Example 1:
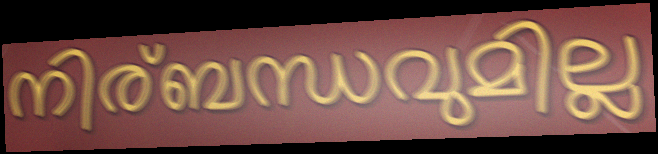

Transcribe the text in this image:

നിര്ബന്ധവുമില്ല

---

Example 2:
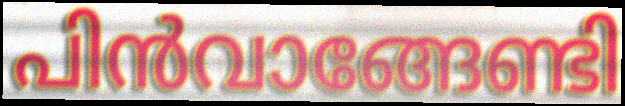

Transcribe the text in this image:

പിൻവാങ്ങേണ്ടി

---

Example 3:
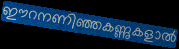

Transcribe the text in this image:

ഈറനണിഞ്ഞകണ്ണുകളാൽ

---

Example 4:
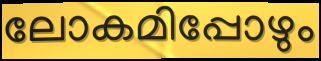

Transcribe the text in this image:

ലോകമിപ്പോഴും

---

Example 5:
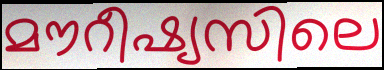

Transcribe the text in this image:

മൗറീഷ്യസിലെ